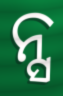
ନ୍ସ